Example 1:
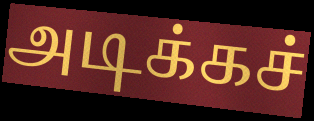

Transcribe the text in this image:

அடிக்கச்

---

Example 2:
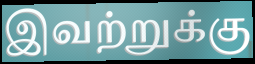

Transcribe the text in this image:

இவற்றுக்கு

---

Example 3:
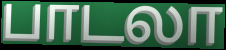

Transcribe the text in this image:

பாடலா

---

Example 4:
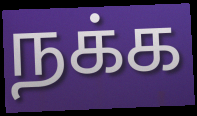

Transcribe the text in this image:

நக்க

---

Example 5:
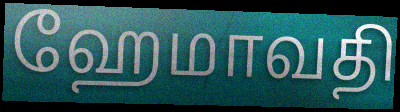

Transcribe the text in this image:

ஹேமாவதி